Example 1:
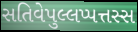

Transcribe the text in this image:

સતિવેપુલ્લપ્પત્તસ્સ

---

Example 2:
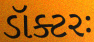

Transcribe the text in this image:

ડૉક્ટરઃ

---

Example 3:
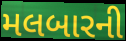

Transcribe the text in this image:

મલબારની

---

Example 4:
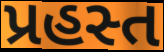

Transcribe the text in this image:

પ્રહસ્ત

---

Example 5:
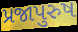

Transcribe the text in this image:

પ્રજાપુરુષ